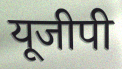
यूजीपी